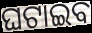
ଘଟାଇବ